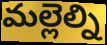
మల్లెల్ని